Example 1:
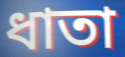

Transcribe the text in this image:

ধাতা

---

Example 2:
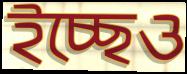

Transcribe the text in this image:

ইচ্ছেও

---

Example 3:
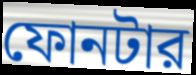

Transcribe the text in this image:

ফোনটার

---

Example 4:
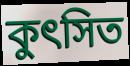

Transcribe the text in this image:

কুৎসিত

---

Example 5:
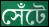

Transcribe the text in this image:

সেঁটে